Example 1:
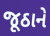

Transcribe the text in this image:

જૂઠાને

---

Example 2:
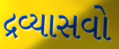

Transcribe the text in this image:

દ્રવ્યાસવો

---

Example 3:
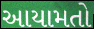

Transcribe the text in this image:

આયામતો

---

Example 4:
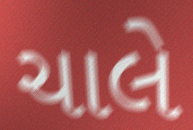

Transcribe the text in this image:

ચાલે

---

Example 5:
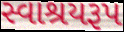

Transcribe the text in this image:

સ્વાશ્રયરૂપ